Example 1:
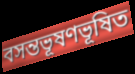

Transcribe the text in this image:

বসন্তভূষণভূষিত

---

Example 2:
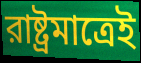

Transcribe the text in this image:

রাষ্ট্রমাত্রেই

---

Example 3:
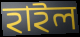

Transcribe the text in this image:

হাইল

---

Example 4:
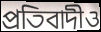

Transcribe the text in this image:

প্রতিবাদীও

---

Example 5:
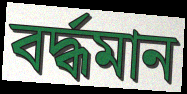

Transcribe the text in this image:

বর্দ্ধমান